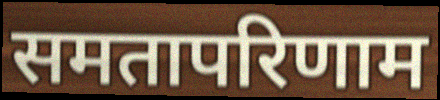
समतापरिणाम